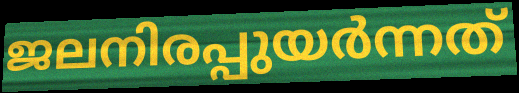
ജലനിരപ്പുയർന്നത്